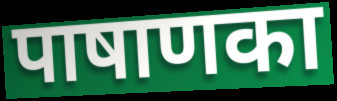
पाषाणका